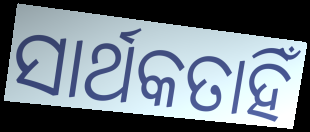
ସାର୍ଥକତାହିଁ